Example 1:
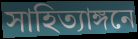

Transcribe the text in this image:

সাহিত্যাঙ্গনে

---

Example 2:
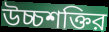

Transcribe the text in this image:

উচ্চশক্তির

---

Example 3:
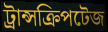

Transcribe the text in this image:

ট্রান্সক্রিপটেজ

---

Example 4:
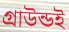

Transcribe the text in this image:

গ্রাউন্ডই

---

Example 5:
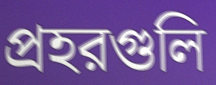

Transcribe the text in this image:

প্রহরগুলি